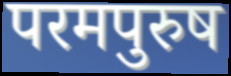
परमपुरुष